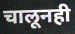
चालूनही